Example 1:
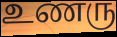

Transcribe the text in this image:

உணரு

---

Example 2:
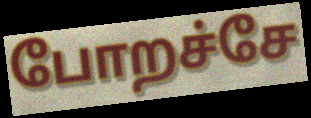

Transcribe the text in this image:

போறச்சே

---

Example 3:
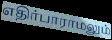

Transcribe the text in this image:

எதிர்பாராமலும்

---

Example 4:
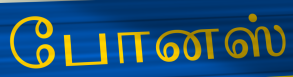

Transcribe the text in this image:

போனஸ்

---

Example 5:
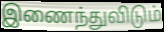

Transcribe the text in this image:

இணைந்துவிடும்